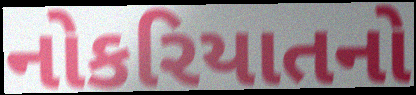
નોકરિયાતનો